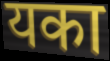
यका